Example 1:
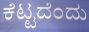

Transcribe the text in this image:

ಕೆಟ್ಟದೆಂದು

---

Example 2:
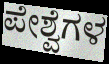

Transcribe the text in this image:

ಪೇಶ್ವೆಗಳ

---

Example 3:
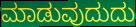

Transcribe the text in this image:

ಮಾಡುವುದುದು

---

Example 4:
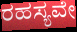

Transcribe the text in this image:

ರಹಸ್ಯವೇ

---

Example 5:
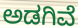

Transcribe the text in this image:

ಅಡಗಿವೆ